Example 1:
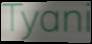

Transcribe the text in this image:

Tyani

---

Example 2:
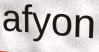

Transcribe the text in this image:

afyon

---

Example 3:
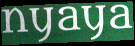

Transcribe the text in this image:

nyaya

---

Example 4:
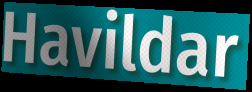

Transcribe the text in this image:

Havildar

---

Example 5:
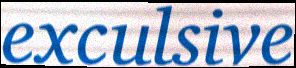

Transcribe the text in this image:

exculsive